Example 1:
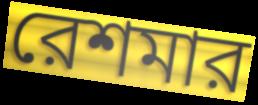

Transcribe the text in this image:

রেশমার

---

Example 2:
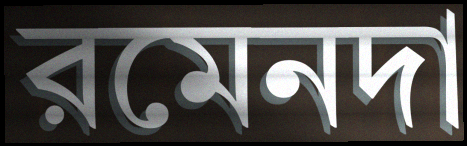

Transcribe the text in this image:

রমেনদা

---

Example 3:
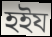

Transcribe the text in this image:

হইয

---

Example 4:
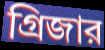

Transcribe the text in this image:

গ্রিজার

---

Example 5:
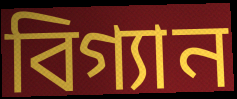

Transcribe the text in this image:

বিগ্যান